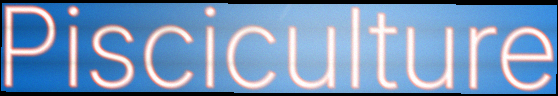
Pisciculture